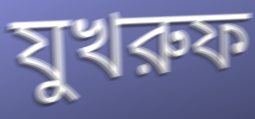
যুখরুফ